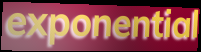
exponential